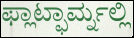
ಫ್ಲಾಟ್ಫಾರ್ಮ್ನಲ್ಲಿ